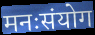
मनःसंयोग